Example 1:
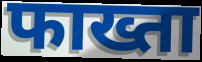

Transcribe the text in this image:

फाख्ता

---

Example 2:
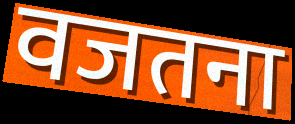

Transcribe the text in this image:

वजतना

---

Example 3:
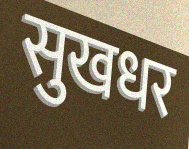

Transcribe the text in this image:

सुखधर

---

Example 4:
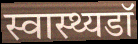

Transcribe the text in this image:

स्वास्थ्यडॉ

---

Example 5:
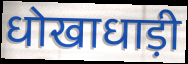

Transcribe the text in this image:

धोखाधाड़ी